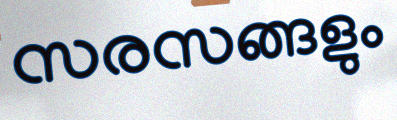
സരസങ്ങളും